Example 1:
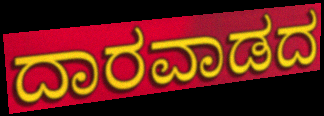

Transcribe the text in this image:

ದಾರವಾಡದ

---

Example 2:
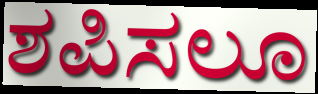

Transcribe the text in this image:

ಶಪಿಸಲೂ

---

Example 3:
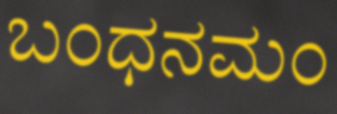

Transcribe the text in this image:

ಬಂಧನಮಂ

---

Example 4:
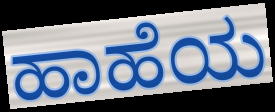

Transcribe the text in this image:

ಹಾಹೆಯ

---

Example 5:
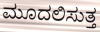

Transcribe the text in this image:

ಮೂದಲಿಸುತ್ತ